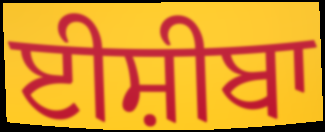
ਈਸ਼ੀਬਾ